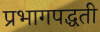
प्रभागपद्धती